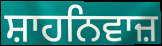
ਸ਼ਾਹਨਿਵਾਜ਼